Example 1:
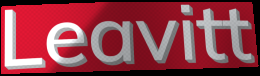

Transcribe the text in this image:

Leavitt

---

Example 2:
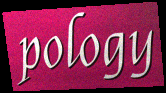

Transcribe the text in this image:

pology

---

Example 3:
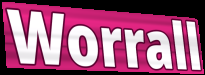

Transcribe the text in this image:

Worrall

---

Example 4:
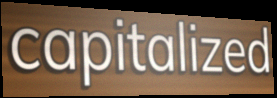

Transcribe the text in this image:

capitalized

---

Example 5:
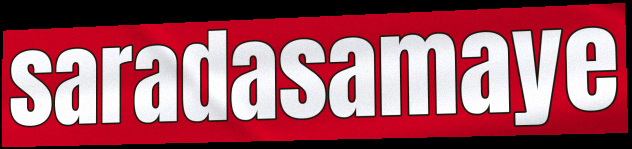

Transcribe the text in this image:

saradasamaye